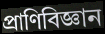
প্রাণিবিজ্ঞান